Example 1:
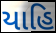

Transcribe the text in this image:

યાહિ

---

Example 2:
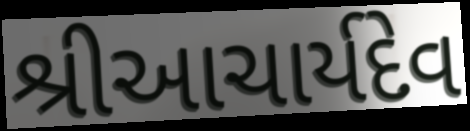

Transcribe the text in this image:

શ્રીઆચાર્યદેવ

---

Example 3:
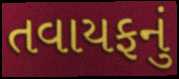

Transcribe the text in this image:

તવાયફનું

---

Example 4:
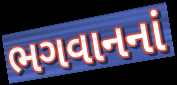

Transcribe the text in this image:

ભગવાનનાં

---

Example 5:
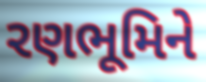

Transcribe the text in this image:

રણભૂમિને